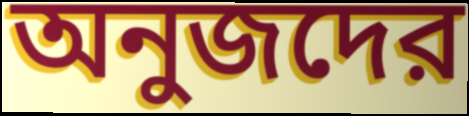
অনুজদের